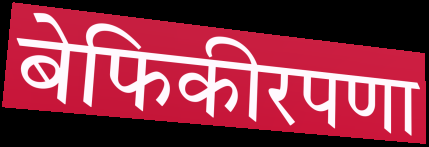
बेफिकीरपणा